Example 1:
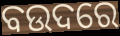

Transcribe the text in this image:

ବଉଦରେ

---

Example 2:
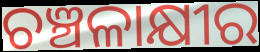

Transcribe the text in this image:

ଚଞ୍ଚଳାକ୍ଷୀର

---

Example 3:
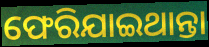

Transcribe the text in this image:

ଫେରିଯାଇଥାନ୍ତା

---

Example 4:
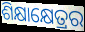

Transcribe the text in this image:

ଶିକ୍ଷାକ୍ଷେତ୍ରର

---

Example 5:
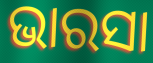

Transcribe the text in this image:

ଭାରସା